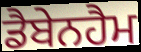
ਡੈਬੇਨਹੈਮ